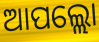
ଆପଲ୍ଲୋ